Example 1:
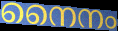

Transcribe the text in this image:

നൈനം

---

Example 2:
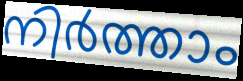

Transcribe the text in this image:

നിർത്താം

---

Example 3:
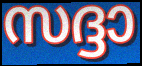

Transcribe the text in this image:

സദ്ദാ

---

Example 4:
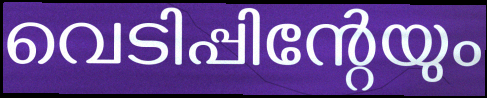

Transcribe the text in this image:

വെടിപ്പിന്റേയും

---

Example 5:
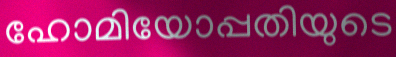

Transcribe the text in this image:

ഹോമിയോപ്പതിയുടെ